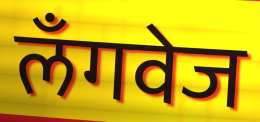
लॅंगवेज